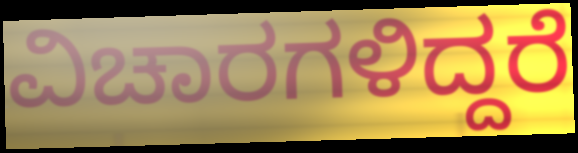
ವಿಚಾರಗಳಿದ್ದರೆ